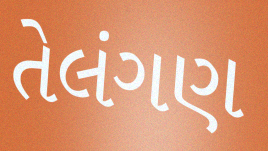
તેલંગણ